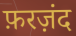
फ़रज़ंद